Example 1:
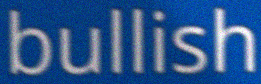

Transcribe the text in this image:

bullish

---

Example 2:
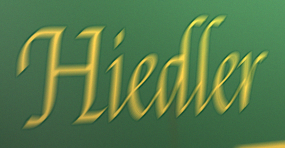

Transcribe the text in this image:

Hiedler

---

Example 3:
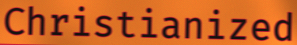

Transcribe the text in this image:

Christianized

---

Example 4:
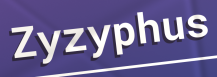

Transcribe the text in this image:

Zyzyphus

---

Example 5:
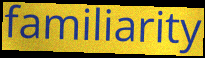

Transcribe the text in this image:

familiarity